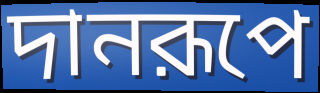
দানরূপে